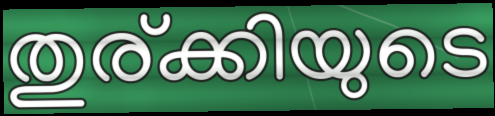
തുര്ക്കിയുടെ